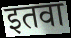
इतवा